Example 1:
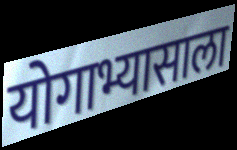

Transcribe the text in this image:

योगाभ्यासाला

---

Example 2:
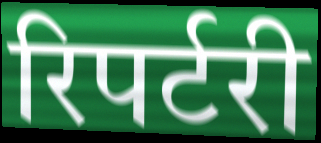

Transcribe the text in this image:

रिपर्टरी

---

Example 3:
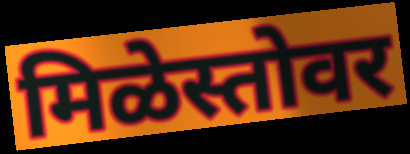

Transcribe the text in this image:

मिळेस्तोवर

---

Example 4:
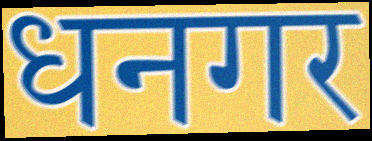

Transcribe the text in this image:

धनगर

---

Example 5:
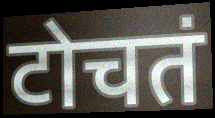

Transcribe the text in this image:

टोचतं